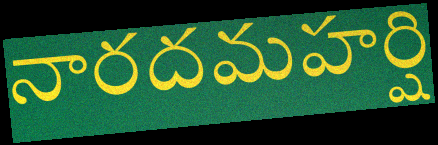
నారదమహర్షి